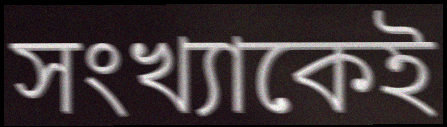
সংখ্যাকেই